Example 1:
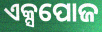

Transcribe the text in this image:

ଏକ୍ସପୋଜ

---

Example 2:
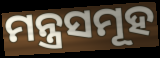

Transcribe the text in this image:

ମନ୍ତ୍ରସମୂହ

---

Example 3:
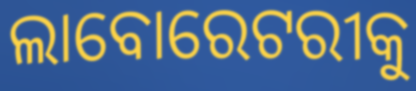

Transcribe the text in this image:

ଲାବୋରେଟରୀକୁ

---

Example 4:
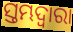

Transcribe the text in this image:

ସ୍ତମ୍ଭଦ୍ୱାରା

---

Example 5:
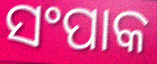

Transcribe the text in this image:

ସଂପାକ